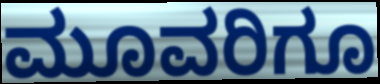
ಮೂವರಿಗೂ